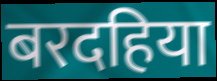
बरदहिया